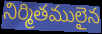
నిర్మితములైన